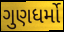
ગુણધર્મો